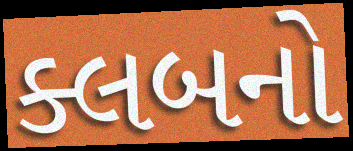
ક્લબનો